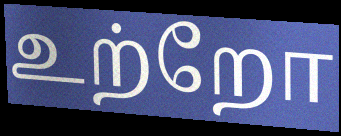
உற்றோ